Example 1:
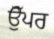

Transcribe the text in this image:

ਉੋੱਪਰ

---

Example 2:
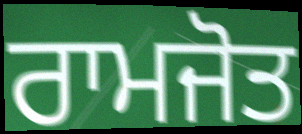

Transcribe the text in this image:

ਰਾਮਜੋਤ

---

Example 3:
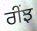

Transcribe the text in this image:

ਰੀਂਝ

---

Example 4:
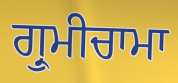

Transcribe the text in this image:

ਗ੍ਰੁਮੀਚਾਮਾ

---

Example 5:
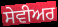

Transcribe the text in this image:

ਸੇਵੀਅਰ